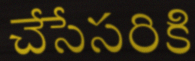
చేసేసరికి